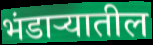
भंडाऱ्यातील